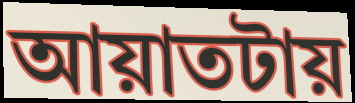
আয়াতটায়